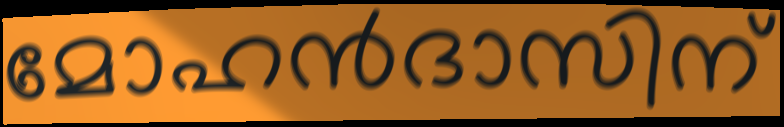
മോഹൻദാസിന്